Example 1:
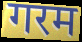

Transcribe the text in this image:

गरम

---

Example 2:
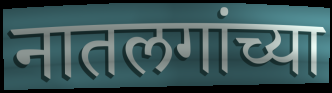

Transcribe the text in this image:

नातलगांच्या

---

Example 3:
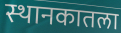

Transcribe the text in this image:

स्थानकातला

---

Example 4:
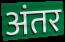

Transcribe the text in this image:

अंतर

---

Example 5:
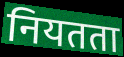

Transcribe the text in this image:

नियतता